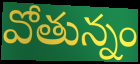
వోతున్నం